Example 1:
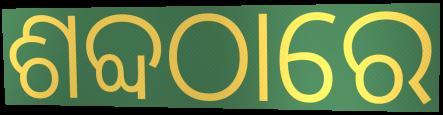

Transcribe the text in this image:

ଶବ୍ଦଠାରେ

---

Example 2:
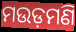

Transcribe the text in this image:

ମଉଡ଼ମଣି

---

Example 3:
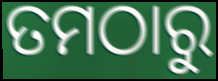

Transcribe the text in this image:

ତମଠାରୁ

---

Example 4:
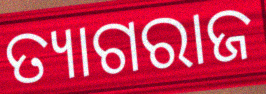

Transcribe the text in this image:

ତ୍ୟାଗରାଜ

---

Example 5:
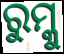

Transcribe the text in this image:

ରୁମ୍କୁ